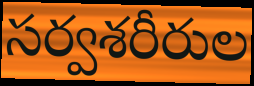
సర్వశరీరుల